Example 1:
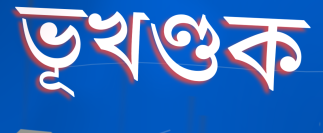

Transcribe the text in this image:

ভূখণ্ডক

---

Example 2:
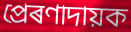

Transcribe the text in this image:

প্ৰেৰণাদায়ক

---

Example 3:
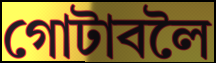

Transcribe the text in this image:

গোটাবলৈ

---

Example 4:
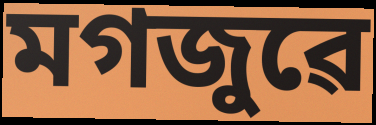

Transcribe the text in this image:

মগজুৱে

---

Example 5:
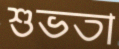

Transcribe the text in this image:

শুভতা